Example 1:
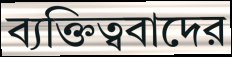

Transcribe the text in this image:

ব্যক্তিত্ববাদের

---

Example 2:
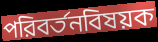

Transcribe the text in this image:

পরিবর্তনবিষয়ক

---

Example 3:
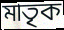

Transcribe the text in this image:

মাতৃক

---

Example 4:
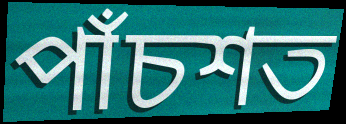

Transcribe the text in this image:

পাঁচশত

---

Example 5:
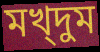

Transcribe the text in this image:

মখ্দুম